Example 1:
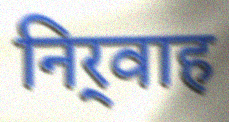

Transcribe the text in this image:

निर्वाह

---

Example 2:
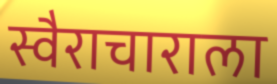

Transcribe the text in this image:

स्वैराचाराला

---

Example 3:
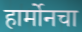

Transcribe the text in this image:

हार्मोनचा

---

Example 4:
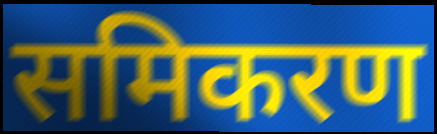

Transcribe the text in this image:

समिकरण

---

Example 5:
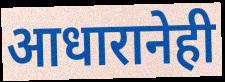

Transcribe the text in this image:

आधारानेही